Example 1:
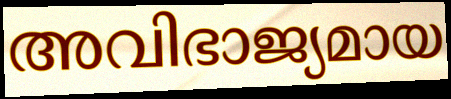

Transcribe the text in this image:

അവിഭാജ്യമായ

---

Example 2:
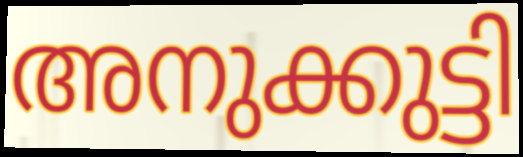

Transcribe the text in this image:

അനുക്കുട്ടി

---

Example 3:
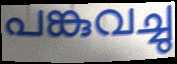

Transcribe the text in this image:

പങ്കുവച്ചു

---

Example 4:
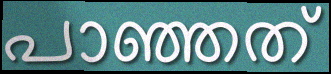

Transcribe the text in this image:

പാഞ്ഞത്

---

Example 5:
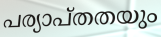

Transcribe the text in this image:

പര്യാപ്തതയും